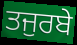
ਤਜੁਰਬੇ